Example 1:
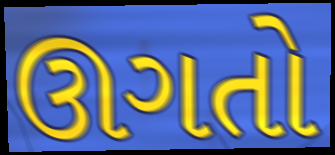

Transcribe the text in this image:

ઊગતો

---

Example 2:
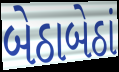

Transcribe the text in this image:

બેઠાબેઠાં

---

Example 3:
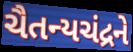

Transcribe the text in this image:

ચૈતન્યચંદ્રને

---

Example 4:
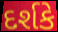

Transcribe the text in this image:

દર્શકે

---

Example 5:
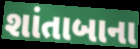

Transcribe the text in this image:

શાંતાબાના